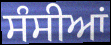
ਸੰਸੀਆਂ